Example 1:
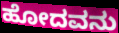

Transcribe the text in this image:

ಹೋದವನು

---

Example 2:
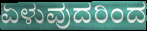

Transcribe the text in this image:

ಏಳುವುದರಿಂದ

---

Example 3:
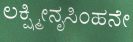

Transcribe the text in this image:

ಲಕ್ಷ್ಮೀನೃಸಿಂಹನೇ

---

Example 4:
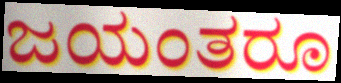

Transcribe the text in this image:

ಜಯಂತರೂ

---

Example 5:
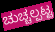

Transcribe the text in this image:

ಚುಚ್ಚಲ್ಪಟ್ಟ